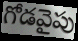
గోడవైపు